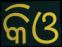
କିଓ